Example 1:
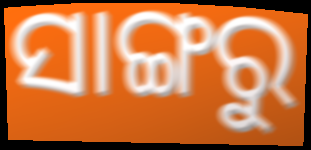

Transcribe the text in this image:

ସାଙ୍ଗରୁ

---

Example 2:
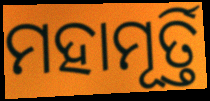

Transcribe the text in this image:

ମହାମୂର୍ତ୍ତି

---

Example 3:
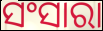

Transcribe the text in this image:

ସଂସାରା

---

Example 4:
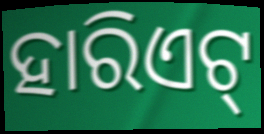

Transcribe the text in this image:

ହାରିଏଟ୍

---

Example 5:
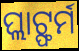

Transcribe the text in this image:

ପ୍ଲାଟ୍ଫର୍ମ